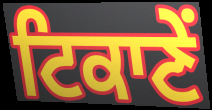
ਟਿਕਾਣੇਂ